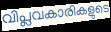
വിപ്ലവകാരികളുടെ